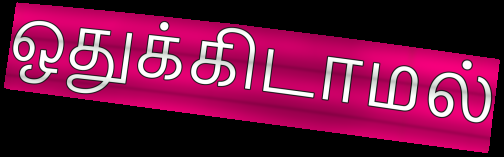
ஒதுக்கிடாமல்